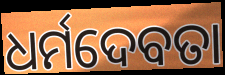
ଧର୍ମଦେବତା